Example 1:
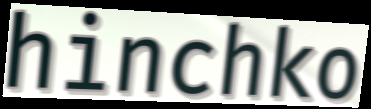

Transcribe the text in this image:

hinchko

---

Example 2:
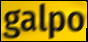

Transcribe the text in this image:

galpo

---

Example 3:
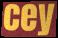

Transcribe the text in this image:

cey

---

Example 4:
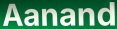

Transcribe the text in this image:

Aanand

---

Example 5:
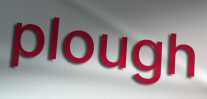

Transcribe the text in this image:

plough